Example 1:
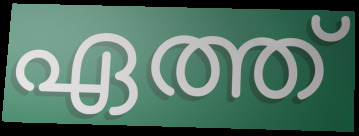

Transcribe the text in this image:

ഏത്ത്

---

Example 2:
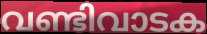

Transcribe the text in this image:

വണ്ടിവാടക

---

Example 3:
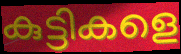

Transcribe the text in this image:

കുട്ടികളെ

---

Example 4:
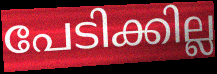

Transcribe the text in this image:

പേടിക്കില്ല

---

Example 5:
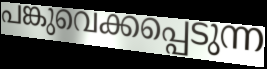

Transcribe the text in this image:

പങ്കുവെക്കപ്പെടുന്ന